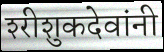
श्रीशुकदेवांनी